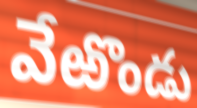
వేఱొండు